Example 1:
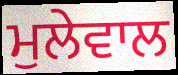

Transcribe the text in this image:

ਮੁਲੇਵਾਲ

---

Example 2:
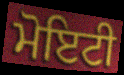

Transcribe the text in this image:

ਮੋਇਟੀ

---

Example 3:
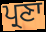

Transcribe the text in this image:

ਪ੍ਰਣਾ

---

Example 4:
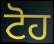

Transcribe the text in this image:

ਟੋਹ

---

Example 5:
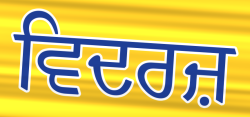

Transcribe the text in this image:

ਵਿਦਰਜ਼